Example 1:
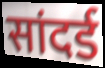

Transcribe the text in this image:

सांदर्ड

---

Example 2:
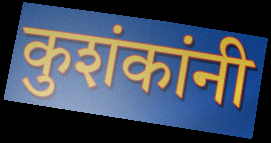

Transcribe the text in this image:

कुशंकांनी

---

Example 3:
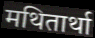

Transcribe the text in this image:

मथितार्था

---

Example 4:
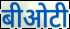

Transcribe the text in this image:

बीओटी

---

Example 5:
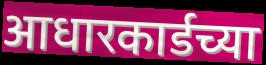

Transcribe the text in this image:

आधारकार्डच्या